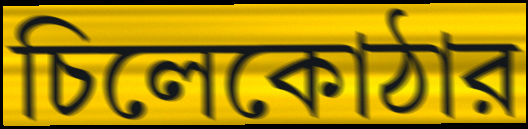
চিলেকোঠার